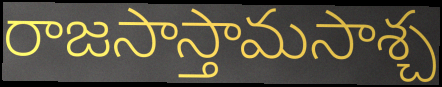
రాజసాస్తామసాశ్చ